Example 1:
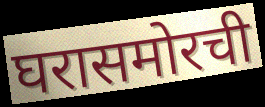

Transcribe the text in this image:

घरासमोरची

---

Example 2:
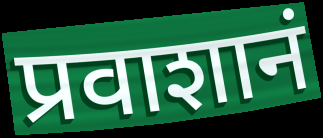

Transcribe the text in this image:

प्रवाशानं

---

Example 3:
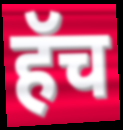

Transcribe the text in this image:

हॅच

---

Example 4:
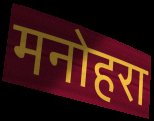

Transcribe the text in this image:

मनोहरा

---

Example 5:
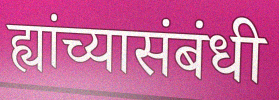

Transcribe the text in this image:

ह्यांच्यासंबंधी